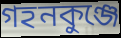
গহনকুঞ্জে